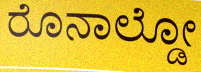
ರೊನಾಲ್ಡೋ